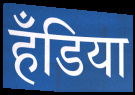
हँडिया